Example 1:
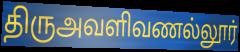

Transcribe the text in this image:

திருஅவளிவணல்லூர்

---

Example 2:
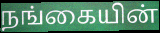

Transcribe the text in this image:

நங்கையின்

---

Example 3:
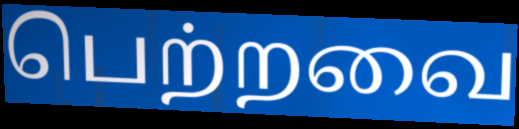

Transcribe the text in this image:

பெற்றவை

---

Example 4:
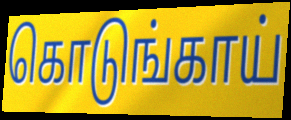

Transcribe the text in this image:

கொடுங்காய்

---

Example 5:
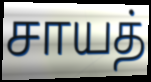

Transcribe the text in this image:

சாயத்